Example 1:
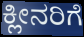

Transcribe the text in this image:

ಕ್ಲೀನರಿಗೆ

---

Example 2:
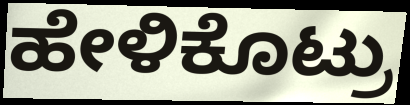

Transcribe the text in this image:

ಹೇಳಿಕೊಟ್ರು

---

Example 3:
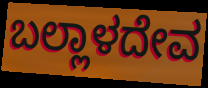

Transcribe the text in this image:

ಬಲ್ಲಾಳದೇವ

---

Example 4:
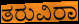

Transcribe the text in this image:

ತರುವಿರಾ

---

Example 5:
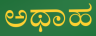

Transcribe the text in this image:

ಅಥಾಹ